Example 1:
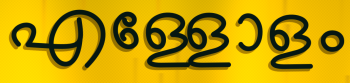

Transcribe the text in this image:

എള്ളോളം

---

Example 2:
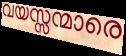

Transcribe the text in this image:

വയസ്സന്മാരെ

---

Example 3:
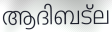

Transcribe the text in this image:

ആദിബട്ല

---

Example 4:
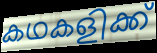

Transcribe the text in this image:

കഥകളിക്ക്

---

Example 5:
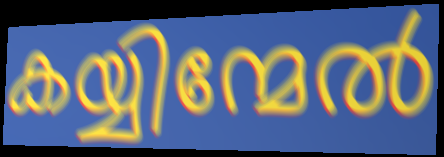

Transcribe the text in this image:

കയ്യിന്മേൽ